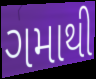
ગમાથી